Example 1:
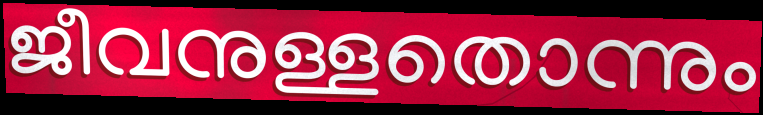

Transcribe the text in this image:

ജീവനുള്ളതൊന്നും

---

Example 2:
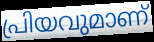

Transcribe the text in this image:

പ്രിയവുമാണ്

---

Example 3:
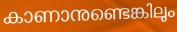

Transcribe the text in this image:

കാണാനുണ്ടെങ്കിലും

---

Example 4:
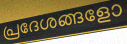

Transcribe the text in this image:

പ്രദേശങ്ങളോ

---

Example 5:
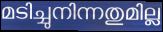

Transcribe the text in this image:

മടിച്ചുനിന്നതുമില്ല